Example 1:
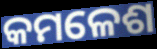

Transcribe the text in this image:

କମଳେଶ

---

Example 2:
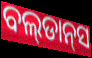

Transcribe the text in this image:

ବଲ୍‌ଡାନ୍‌ସ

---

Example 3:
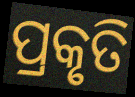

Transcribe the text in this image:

ପ୍ରକୃତି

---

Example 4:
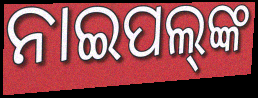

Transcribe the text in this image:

ନାଇପଲ୍‍ଙ୍କ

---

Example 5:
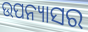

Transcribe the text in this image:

ଉପନ୍ୟାସର